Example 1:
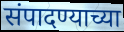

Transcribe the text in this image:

संपादण्याच्या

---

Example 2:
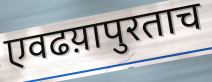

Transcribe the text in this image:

एवढय़ापुरताच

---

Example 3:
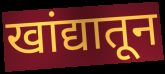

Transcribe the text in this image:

खांद्यातून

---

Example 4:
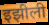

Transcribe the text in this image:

इझीली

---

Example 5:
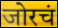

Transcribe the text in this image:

जोरचं